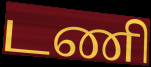
டணி